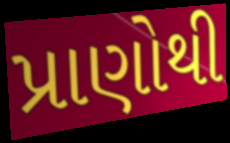
પ્રાણોથી